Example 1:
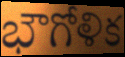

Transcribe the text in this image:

భౌగోళిక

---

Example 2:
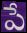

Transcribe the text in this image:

పే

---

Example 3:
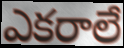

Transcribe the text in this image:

ఎకరాలే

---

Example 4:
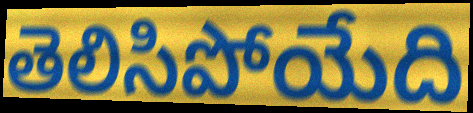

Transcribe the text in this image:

తెలిసిపోయేది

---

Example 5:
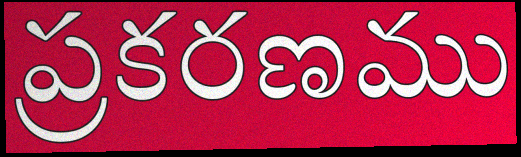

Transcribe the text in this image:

ప్రకరణము